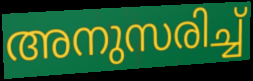
അനുസരിച്ച്